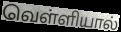
வெள்ளியால்